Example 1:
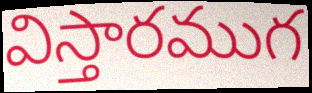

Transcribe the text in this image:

విస్తారముగ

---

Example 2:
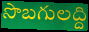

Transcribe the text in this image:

సొబగులద్ది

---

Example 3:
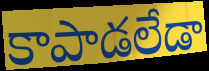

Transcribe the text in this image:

కాపాడలేడా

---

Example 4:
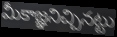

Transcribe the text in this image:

మీకాజ్ఞనిచ్చినట్టు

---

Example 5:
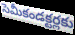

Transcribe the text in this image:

సెమీకండక్టర్లకు